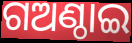
ଗଅଣ୍ଠାଇ